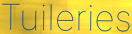
Tuileries